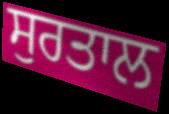
ਸੁਰਤਾਲ